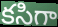
కసిగా